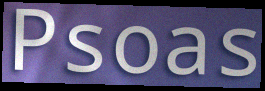
Psoas